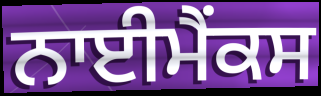
ਨਾਈਮੈਂਕਸ